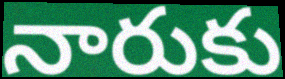
నారుకు